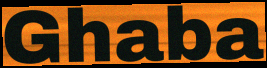
Ghaba